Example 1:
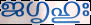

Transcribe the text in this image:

ജഗൃഹുഃ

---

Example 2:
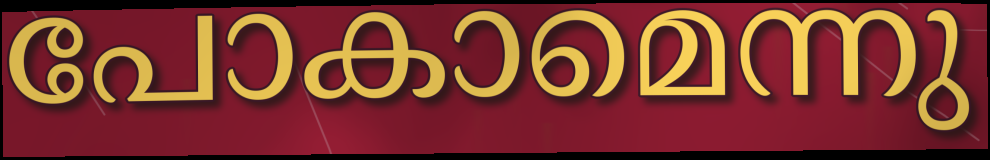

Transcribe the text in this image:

പോകാമെന്നു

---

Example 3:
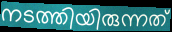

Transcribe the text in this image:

നടത്തിയിരുന്നത്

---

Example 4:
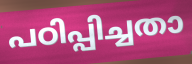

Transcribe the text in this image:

പഠിപ്പിച്ചതാ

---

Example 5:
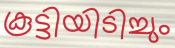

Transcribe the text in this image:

കൂട്ടിയിടിച്ചും